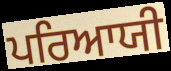
ਪਰਿਆਯੀ